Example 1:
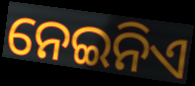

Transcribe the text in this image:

ନେଇନିଏ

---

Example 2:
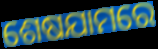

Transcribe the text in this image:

ଶେଷଯାମରେ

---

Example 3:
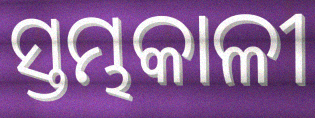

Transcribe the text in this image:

ସ୍ତମ୍ଭକାଳୀ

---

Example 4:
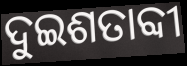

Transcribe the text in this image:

ଦୁଇଶତାବ୍ଦୀ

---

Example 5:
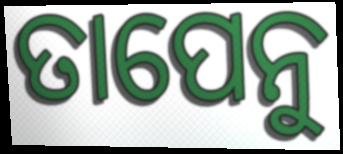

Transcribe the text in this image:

ତାପେନୁ